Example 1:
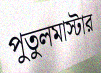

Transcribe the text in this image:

পুতুলমাস্টার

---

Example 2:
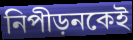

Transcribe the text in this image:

নিপীড়নকেই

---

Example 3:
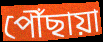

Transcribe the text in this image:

পৌঁছায়া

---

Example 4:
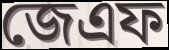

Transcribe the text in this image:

জেএফ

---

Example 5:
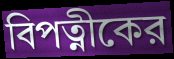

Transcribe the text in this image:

বিপত্নীকের